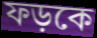
ফড়কে